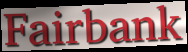
Fairbank